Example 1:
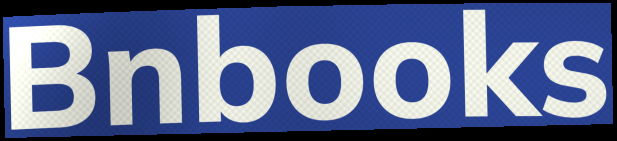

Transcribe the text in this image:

Bnbooks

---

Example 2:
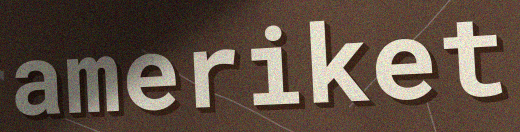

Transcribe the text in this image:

ameriket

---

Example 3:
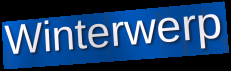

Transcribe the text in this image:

Winterwerp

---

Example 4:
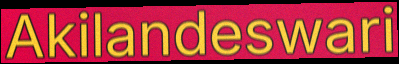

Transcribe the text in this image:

Akilandeswari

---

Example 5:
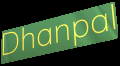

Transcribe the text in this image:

Dhanpal